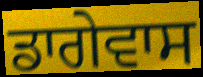
ਡਾਗੇਵਾਸ